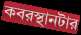
কবরস্থানটার